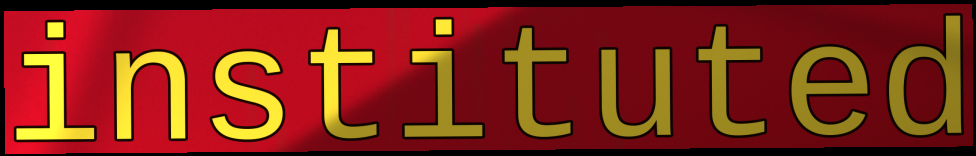
instituted